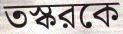
তস্করকে